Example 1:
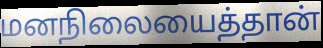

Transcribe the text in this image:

மனநிலையைத்தான்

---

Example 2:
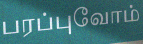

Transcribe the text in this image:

பரப்புவோம்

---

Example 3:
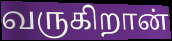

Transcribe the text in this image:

வருகிறான்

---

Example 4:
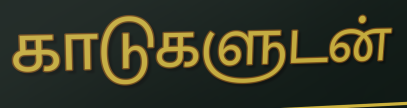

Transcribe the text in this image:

காடுகளுடன்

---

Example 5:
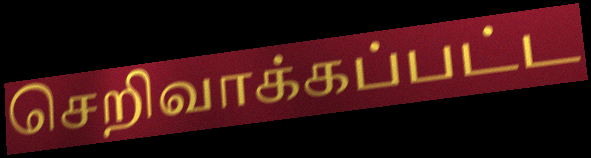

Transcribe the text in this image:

செறிவாக்கப்பட்ட